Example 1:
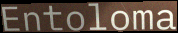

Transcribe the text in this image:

Entoloma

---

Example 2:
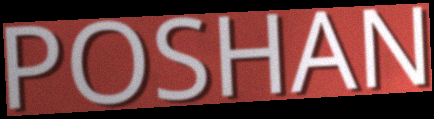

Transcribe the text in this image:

POSHAN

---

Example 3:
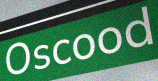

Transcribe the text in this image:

Oscood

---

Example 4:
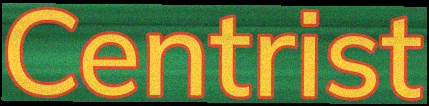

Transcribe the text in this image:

Centrist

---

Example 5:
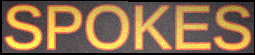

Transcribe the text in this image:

SPOKES